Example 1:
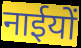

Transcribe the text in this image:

नाईयों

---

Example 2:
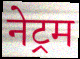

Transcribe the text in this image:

नेट्रम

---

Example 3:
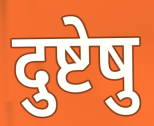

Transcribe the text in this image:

दुष्टेषु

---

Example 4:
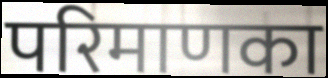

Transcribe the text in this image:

परिमाणका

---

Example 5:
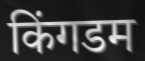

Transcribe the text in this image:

किंगडम